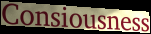
Consiousness